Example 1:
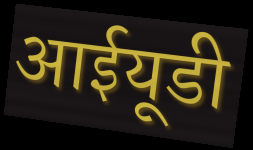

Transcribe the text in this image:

आईयूडी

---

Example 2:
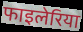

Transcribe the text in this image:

फाइलेरिया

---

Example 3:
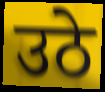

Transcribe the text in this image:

उठे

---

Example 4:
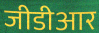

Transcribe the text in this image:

जीडीआर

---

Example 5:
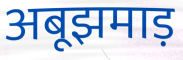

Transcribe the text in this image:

अबूझमाड़